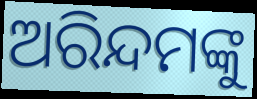
ଅରିନ୍ଦମଙ୍କୁ